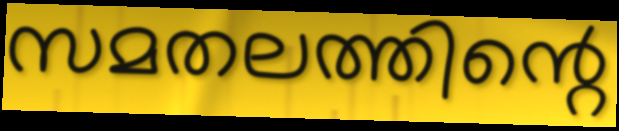
സമതലത്തിന്റെ